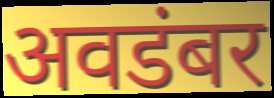
अवडंबर